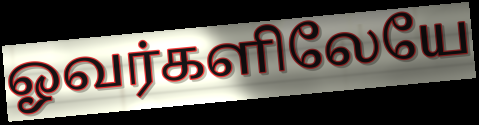
ஓவர்களிலேயே